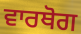
ਵਾਰਥੋਗ